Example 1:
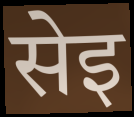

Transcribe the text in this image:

सेइ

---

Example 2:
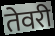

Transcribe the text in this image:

तेवरी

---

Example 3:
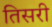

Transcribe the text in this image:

तिसरी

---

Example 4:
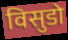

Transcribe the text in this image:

विसुडो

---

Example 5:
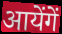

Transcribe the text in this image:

आयेंगें